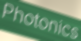
Photonics